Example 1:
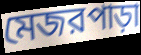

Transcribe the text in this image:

মেজরপাড়া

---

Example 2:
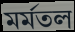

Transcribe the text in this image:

মর্মতল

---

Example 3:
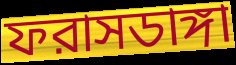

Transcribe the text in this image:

ফরাসডাঙ্গা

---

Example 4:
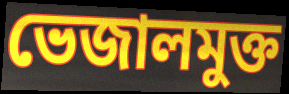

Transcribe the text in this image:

ভেজালমুক্ত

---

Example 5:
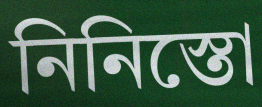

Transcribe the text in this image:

নিনিস্তো